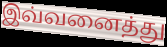
இவ்வனைத்து